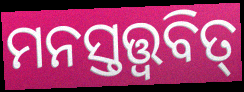
ମନସ୍ତତ୍ତ୍ଵବିତ୍